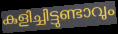
കുളിച്ചിട്ടുണ്ടാവും